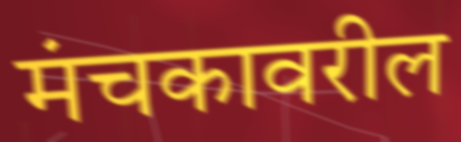
मंचकावरील